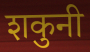
शकुनी